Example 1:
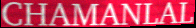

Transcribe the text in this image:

CHAMANLAL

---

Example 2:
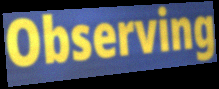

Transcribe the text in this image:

Observing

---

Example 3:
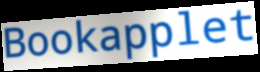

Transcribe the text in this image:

Bookapplet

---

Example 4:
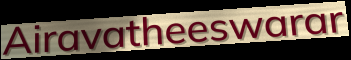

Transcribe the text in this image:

Airavatheeswarar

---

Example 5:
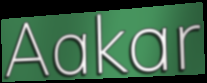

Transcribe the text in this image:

Aakar